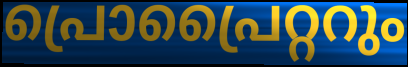
പ്രൊപ്രൈറ്ററും